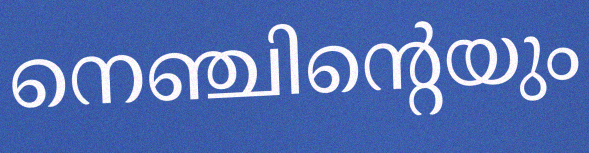
നെഞ്ചിന്റെയും